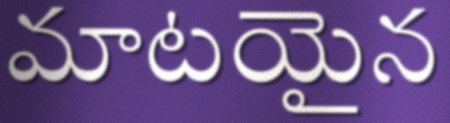
మాటయైన